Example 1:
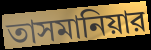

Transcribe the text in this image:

তাসমানিয়ার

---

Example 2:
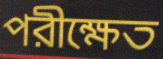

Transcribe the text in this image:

পরীক্ষেত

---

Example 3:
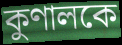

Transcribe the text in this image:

কুণালকে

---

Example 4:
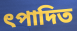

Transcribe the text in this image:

ৎপাদিত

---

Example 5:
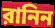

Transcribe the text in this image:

রানিন